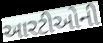
આરટીઓની